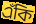
এঁকি